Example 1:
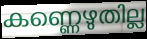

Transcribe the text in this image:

കണ്ണെഴുതില്ല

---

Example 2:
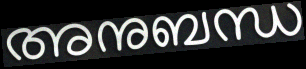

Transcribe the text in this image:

അനുബന്ധ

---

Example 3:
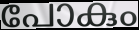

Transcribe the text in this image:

പോകും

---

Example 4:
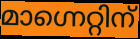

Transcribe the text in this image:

മാഗ്നെറ്റിന്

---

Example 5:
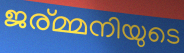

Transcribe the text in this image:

ജര്മ്മനിയുടെ